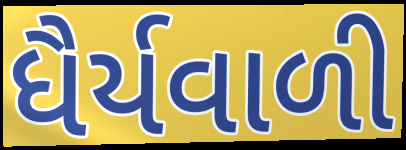
ધૈર્યવાળી